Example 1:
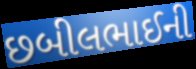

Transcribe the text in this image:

છબીલભાઈની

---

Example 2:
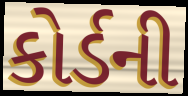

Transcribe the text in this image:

કોર્ડની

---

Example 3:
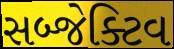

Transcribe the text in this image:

સબ્જેક્ટિવ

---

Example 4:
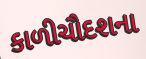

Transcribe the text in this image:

કાળીચૌદશના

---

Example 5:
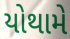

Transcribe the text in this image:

યોથામે